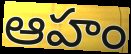
ఆహం